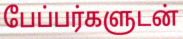
பேப்பர்களுடன்